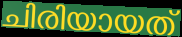
ചിരിയായത്